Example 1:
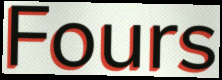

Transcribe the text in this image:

Fours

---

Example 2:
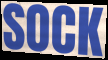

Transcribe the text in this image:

SOCK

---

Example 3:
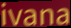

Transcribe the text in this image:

ivana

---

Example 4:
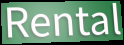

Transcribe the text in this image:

Rental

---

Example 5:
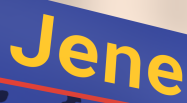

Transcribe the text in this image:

Jene